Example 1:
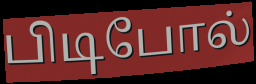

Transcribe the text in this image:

பிடிபோல்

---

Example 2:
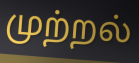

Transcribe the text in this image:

முற்றல்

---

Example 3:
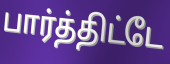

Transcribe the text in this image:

பார்த்திட்டே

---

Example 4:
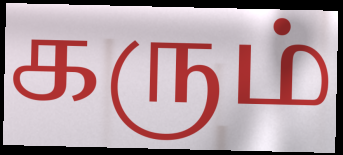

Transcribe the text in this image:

கரும்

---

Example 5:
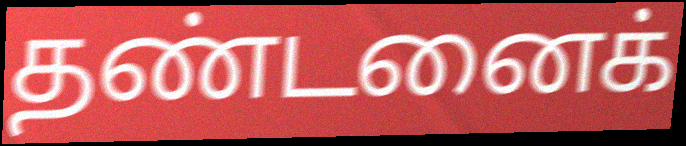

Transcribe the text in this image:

தண்டனைக்